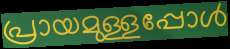
പ്രായമുള്ളപ്പോൾ